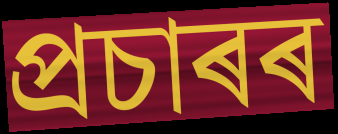
প্ৰচাৰৰ